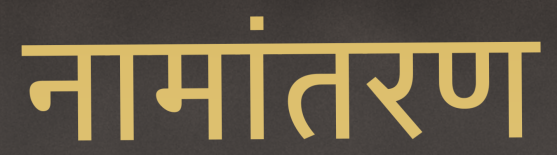
नामांतरण